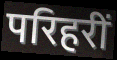
परिहरीं